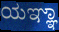
ಯಞ್ಞಾ